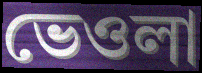
ভেওলা